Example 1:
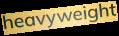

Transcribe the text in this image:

heavyweight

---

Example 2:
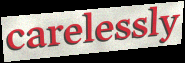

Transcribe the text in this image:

carelessly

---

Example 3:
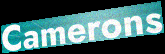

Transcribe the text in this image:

Camerons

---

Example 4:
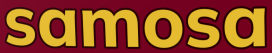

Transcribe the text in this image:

samosa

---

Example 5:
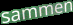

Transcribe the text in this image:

sammen